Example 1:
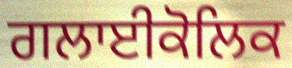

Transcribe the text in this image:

ਗਲਾਈਕੋਲਿਕ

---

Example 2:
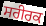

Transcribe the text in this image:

ਸਰੀਰਕ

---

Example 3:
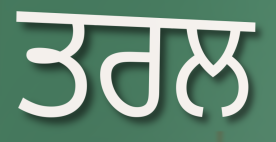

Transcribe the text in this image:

ਤਰਲ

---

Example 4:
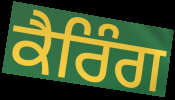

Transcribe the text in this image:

ਕੈਰਿੰਗ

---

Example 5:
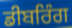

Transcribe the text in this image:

ਡੀਬਰਿੰਗ